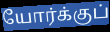
யோர்க்குப்